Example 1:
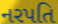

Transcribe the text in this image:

નરપતિ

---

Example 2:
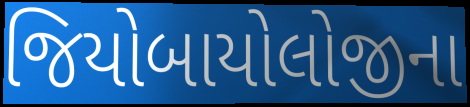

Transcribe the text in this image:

જિયોબાયોલોજીના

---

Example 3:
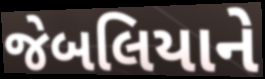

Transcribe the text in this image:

જેબલિયાને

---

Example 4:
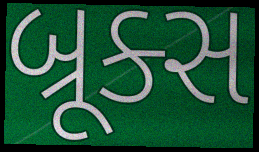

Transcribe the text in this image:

બ્રૂક્સ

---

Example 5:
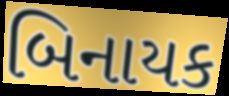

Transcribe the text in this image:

બિનાયક